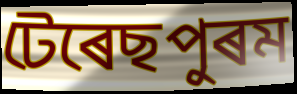
টেৰেছপুৰম